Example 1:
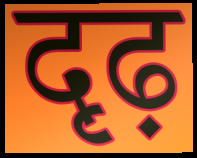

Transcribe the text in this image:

दृढ़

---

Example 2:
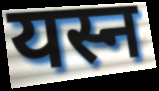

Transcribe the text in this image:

यस्न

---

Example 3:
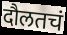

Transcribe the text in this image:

दौलतचं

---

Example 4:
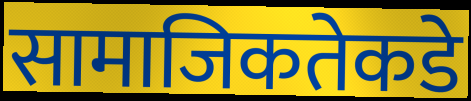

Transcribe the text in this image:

सामाजिकतेकडे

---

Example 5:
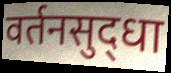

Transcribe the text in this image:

वर्तनसुद्धा